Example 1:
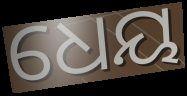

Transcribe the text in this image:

ଧେୟ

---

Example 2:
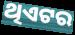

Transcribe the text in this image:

ଥିଏଟର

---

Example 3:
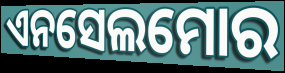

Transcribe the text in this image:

ଏନସେଲମୋର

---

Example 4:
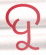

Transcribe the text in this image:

ଦୁ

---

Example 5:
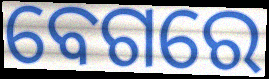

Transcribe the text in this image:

ବେଗରେ